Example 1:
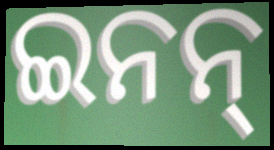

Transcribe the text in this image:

ଇନନ୍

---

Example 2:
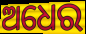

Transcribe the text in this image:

ଅଧେର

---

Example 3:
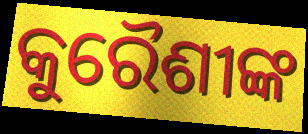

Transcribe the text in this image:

କୁରୈଶୀଙ୍କ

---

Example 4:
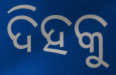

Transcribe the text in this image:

ଦିହକୁ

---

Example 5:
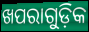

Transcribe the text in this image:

ଖପରାଗୁଡ଼ିକ